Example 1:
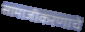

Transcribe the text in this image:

सामाजीकरणाचे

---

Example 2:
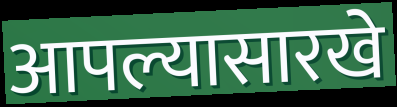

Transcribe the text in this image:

आपल्यासारखे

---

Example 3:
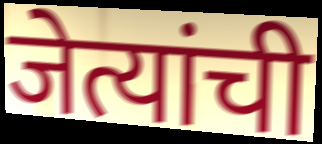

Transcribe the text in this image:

जेत्यांची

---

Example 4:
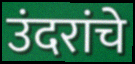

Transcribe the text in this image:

उंदरांचे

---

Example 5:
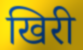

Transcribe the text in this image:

खिरी